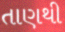
તાણથી